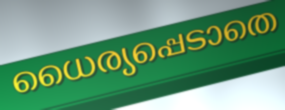
ധൈര്യപ്പെടാതെ